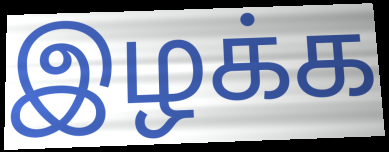
இழக்க